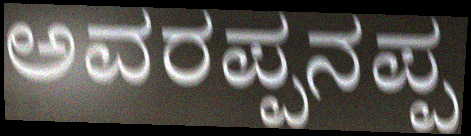
ಅವರಪ್ಪನಪ್ಪ